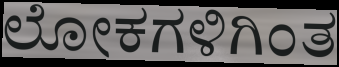
ಲೋಕಗಳಿಗಿಂತ